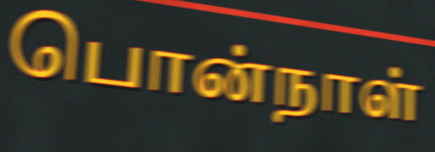
பொன்நாள்